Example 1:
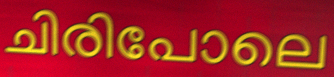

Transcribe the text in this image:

ചിരിപോലെ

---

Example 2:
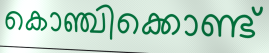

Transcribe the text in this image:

കൊഞ്ചിക്കൊണ്ട്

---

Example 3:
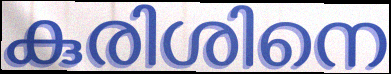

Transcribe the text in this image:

കുരിശിനെ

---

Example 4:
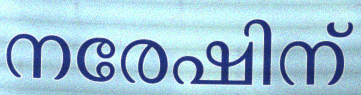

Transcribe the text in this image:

നരേഷിന്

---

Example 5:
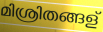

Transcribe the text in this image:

മിശ്രിതങ്ങള്